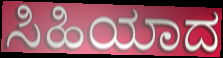
ಸಿಹಿಯಾದ